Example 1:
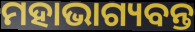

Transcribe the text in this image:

ମହାଭାଗ୍ୟବନ୍ତ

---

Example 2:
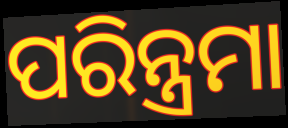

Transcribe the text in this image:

ପରିନ୍ତ୍ରମା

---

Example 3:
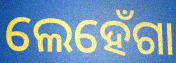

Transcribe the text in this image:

ଲେହେଁଗା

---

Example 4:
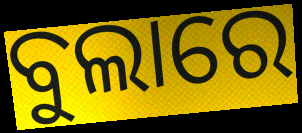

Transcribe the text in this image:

ବୁଲାରେ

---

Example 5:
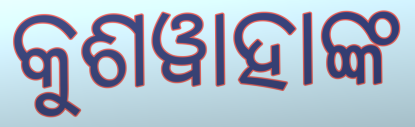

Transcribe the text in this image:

କୁଶୱାହାଙ୍କ